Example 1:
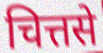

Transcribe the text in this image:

चित्तसे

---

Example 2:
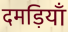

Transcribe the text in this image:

दमड़ियाँ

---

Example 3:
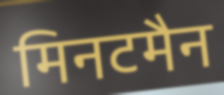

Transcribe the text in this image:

मिनटमैन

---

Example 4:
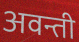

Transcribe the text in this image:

अवन्ती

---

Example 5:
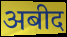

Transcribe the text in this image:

अबीद